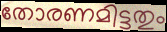
തോരണമിട്ടതും